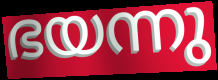
ഭയന്നു